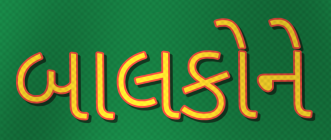
બાલકોને